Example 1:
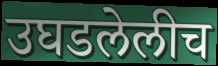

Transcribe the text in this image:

उघडलेलीच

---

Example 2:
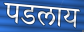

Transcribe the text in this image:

पडलाय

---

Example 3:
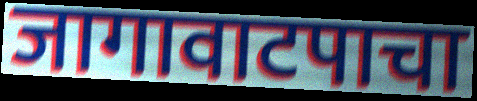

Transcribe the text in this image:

जागावाटपाचा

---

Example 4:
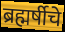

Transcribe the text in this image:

ब्रह्मर्षीचे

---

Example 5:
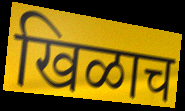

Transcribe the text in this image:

खिळाच